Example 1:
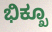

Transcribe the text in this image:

ಭಿಕ್ಖೂ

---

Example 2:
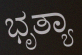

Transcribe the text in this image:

ಭೃತ್ಯಾ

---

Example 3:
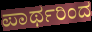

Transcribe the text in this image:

ಪಾರ್ಥರಿಂದ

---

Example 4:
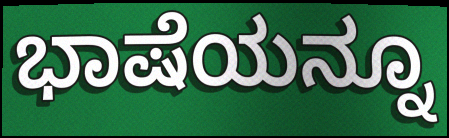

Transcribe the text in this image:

ಭಾಷೆಯನ್ನೂ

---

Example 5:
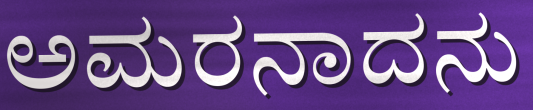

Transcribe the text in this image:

ಅಮರನಾದನು